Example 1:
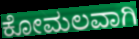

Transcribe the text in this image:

ಕೋಮಲವಾಗಿ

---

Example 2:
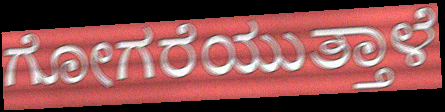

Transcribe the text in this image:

ಗೋಗರೆಯುತ್ತಾಳೆ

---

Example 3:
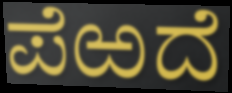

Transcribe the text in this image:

ಪೆಱದೆ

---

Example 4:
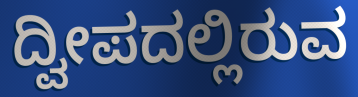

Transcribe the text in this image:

ದ್ವೀಪದಲ್ಲಿರುವ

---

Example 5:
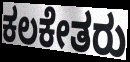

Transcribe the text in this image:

ಕಲಕೇತರು